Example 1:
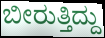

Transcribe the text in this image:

ಬೀರುತ್ತಿದ್ದು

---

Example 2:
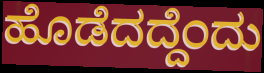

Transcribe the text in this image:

ಹೊಡೆದದ್ದೆಂದು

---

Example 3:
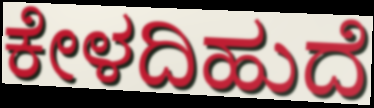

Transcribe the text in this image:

ಕೇಳದಿಹುದೆ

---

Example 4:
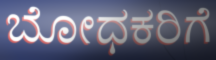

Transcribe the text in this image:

ಬೋಧಕರಿಗೆ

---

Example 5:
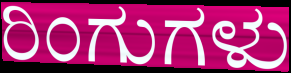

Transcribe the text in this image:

ರಿಂಗುಗಳು